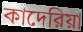
কাদেরিয়া